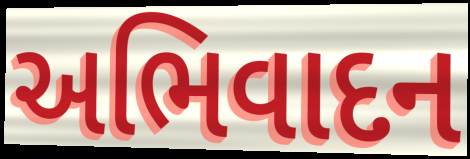
અભિવાદન